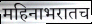
महिनाभरातच